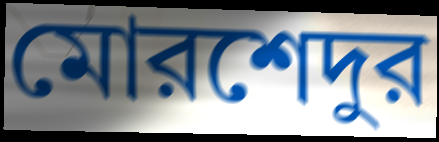
মোরশেদুর